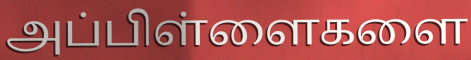
அப்பிள்ளைகளை